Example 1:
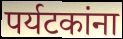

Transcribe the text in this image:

पर्यटकांना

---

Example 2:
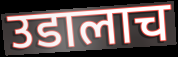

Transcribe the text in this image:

उडालाच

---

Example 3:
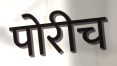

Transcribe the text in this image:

पोरीच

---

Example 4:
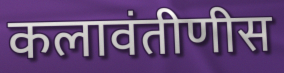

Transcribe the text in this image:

कलावंतीणीस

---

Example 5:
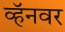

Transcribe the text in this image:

व्हॅनवर